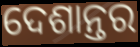
ଦେଶାନ୍ତର